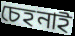
চেহনাই